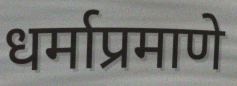
धर्माप्रमाणे